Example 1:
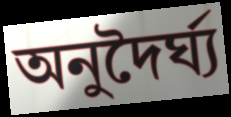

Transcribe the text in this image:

অনুদৈর্ঘ্য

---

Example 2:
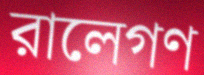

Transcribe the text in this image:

রালেগণ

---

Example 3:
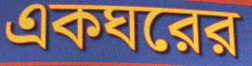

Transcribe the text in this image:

একঘরের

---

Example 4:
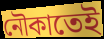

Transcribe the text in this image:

নৌকাতেই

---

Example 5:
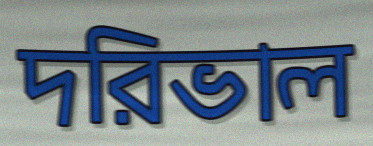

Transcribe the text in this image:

দরিভাল